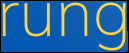
rung